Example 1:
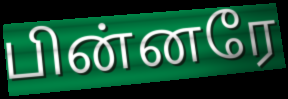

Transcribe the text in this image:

பின்னரே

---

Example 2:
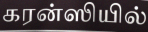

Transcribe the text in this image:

கரன்ஸியில்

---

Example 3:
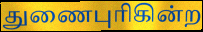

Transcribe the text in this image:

துணைபுரிகின்ற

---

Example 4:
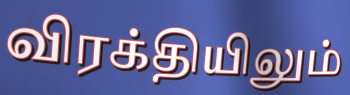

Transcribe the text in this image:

விரக்தியிலும்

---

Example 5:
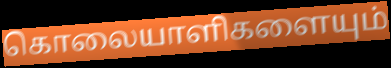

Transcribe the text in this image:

கொலையாளிகளையும்